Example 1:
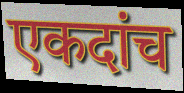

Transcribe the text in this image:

एकदांच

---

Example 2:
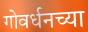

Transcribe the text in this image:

गोवर्धनच्या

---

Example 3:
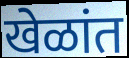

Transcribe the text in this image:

खेळांत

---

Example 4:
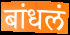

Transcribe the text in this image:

बांधलं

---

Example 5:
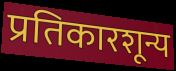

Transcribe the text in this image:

प्रतिकारशून्य